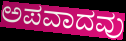
ಅಪವಾದವು